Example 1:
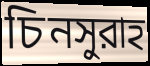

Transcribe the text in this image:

চিনসুরাহ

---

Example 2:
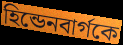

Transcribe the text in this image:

হিন্ডেনবার্গকে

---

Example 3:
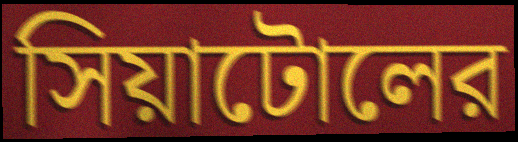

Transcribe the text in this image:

সিয়াটোলের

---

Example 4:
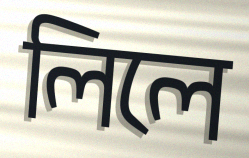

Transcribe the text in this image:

লিলে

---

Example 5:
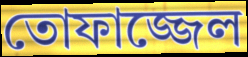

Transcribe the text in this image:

তোফাজ্জেল